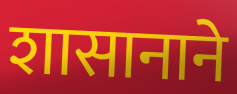
शासानाने